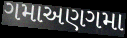
ગમાઅણગમા